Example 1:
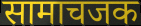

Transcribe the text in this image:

सामाचजक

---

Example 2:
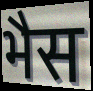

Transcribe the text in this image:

भैस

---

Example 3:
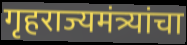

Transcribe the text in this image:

गृहराज्यमंत्र्यांचा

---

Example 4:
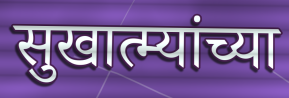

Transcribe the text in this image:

सुखात्म्यांच्या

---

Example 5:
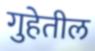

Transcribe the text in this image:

गुहेतील